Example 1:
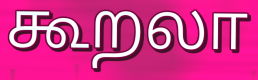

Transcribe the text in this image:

கூறலா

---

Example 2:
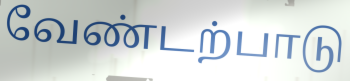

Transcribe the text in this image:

வேண்டற்பாடு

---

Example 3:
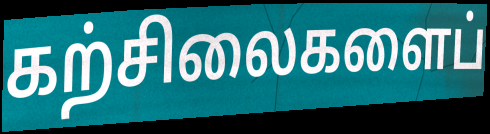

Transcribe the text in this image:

கற்சிலைகளைப்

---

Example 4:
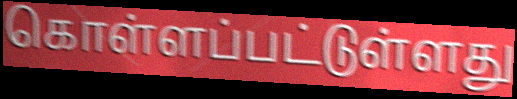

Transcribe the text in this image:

கொள்ளப்பட்டுள்ளது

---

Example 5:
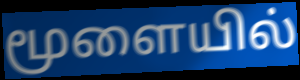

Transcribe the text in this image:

மூளையில்